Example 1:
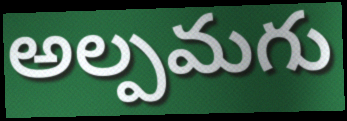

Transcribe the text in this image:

అల్పమగు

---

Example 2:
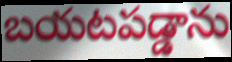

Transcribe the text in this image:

బయటపడ్డాను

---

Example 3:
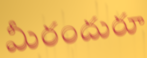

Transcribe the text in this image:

మీరందురూ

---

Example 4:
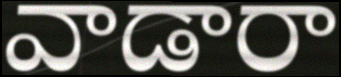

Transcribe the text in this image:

వాడారా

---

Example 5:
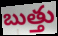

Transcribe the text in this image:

బుత్తు